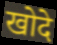
खोदे